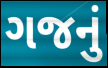
ગજનું